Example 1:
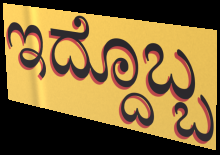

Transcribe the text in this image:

ಇದ್ದೊಬ್ಬ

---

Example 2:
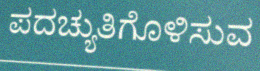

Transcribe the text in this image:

ಪದಚ್ಯುತಿಗೊಳಿಸುವ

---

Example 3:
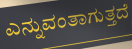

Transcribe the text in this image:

ಎನ್ನುವಂತಾಗುತ್ತದೆ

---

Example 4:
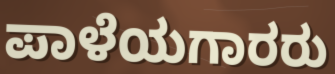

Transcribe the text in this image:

ಪಾಳೆಯಗಾರರು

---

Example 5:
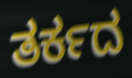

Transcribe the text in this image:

ತರ್ಕದ